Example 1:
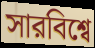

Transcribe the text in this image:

সারবিশ্বে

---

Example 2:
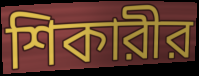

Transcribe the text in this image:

শিকারীর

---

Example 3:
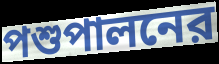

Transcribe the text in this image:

পশুপালনের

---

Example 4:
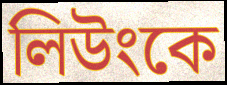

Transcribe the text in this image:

লিউংকে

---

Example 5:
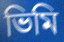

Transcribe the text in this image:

ভিমি